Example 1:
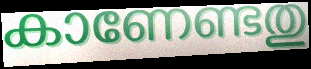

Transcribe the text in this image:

കാണേണ്ടതു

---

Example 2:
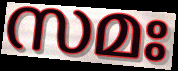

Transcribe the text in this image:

സമഃ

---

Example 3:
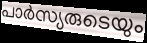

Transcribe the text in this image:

പാർസ്യരുടെയും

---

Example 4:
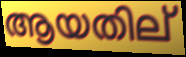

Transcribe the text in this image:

ആയതില്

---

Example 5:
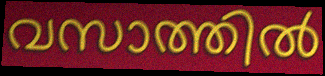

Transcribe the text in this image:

വസാത്തിൽ